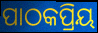
ପାଠକପ୍ରିୟ